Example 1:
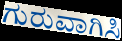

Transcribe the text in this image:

ಗುರುವಾಗಿಸಿ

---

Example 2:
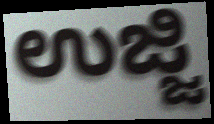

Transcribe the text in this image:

ಉಜ್ಜಿ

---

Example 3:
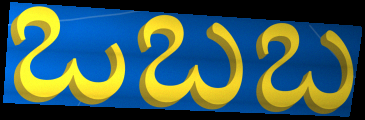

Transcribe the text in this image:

ಒಬಬ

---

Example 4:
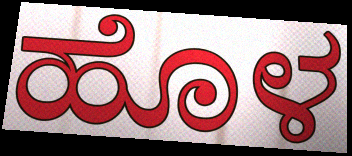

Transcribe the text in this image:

ಹೊಳ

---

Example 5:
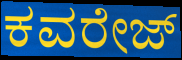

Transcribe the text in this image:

ಕವರೇಜ್